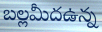
బల్లమీదఉన్న